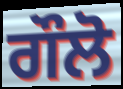
ਗੌਲੋ